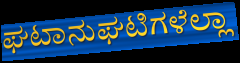
ಘಟಾನುಘಟಿಗಳೆಲ್ಲಾ